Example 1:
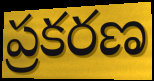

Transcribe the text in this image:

ప్రకరణ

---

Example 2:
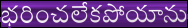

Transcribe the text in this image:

భరించలేకపోయాను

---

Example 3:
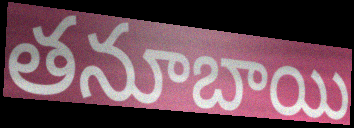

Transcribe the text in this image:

తనూబాయి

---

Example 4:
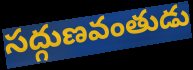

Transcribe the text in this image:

సద్గుణవంతుడు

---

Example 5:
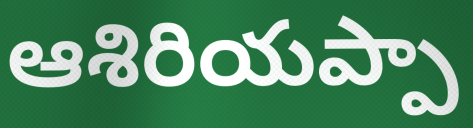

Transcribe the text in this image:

ఆశిరియప్పా